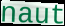
naut